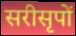
सरीसृपों